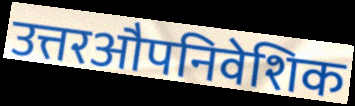
उत्तरऔपनिवेशिक